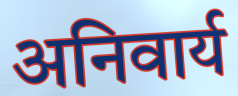
अनिवार्य